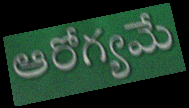
ఆరోగ్యమే